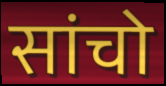
सांचो